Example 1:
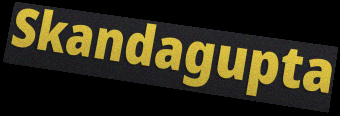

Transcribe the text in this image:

Skandagupta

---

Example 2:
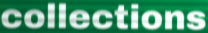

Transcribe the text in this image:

collections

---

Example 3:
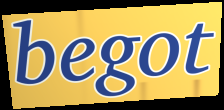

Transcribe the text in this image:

begot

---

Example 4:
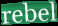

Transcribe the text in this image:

rebel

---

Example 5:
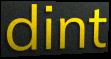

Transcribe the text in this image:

dint